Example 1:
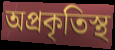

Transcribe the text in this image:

অপ্রকৃতিস্থ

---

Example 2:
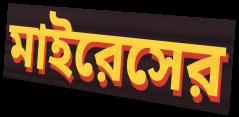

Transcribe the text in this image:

মাইরেসের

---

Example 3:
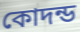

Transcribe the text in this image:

কোদন্ড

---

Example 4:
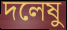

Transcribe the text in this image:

দলেষু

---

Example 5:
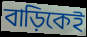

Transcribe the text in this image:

বাড়িকেই